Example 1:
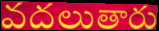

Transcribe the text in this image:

వదలుతారు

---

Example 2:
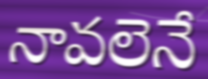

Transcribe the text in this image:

నావలెనే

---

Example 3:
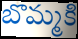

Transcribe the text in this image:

బొమ్మకి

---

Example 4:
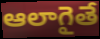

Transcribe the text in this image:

ఆలాగైతే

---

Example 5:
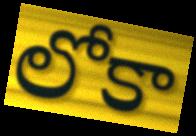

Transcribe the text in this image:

లోకా